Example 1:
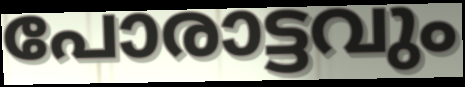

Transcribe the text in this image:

പോരാട്ടവും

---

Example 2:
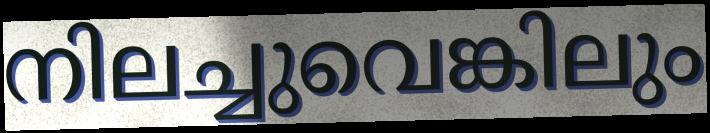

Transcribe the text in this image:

നിലച്ചുവെങ്കിലും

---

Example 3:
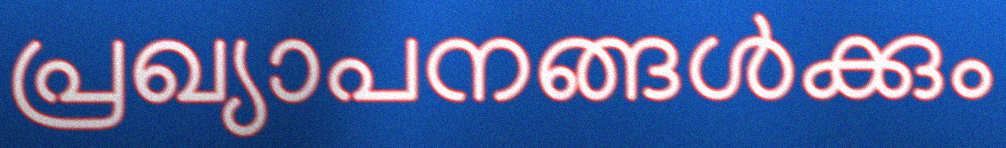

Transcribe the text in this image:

പ്രഖ്യാപനങ്ങൾക്കും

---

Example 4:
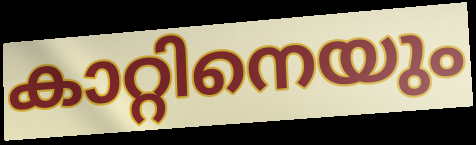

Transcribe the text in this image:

കാറ്റിനെയും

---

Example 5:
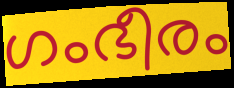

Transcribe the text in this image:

ഗംഭീരം